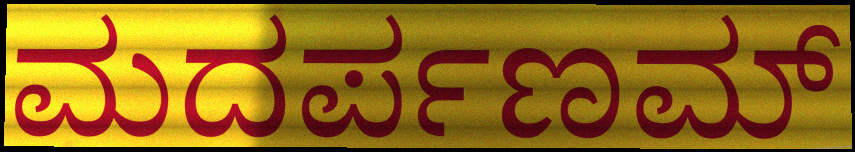
ಮದರ್ಪಣಮ್